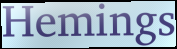
Hemings